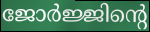
ജോർജ്ജിന്റെ